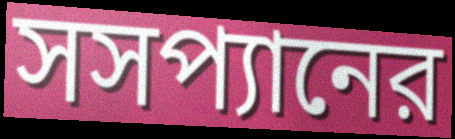
সসপ্যানের